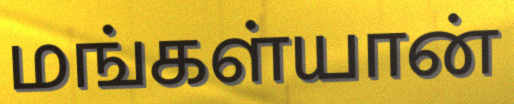
மங்கள்யான்